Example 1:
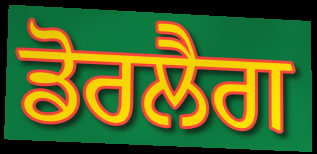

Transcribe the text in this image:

ਡੋਰਲੈਗ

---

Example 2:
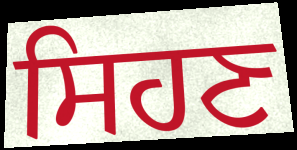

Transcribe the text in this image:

ਸਿਹਣ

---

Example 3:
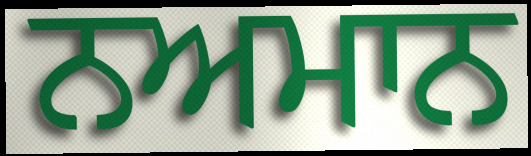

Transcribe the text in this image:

ਨਅਮਾਨ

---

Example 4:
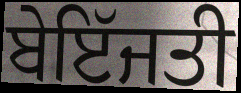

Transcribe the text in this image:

ਬੇਇੱਜਤੀ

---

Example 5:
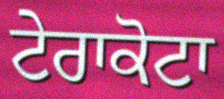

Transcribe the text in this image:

ਟੇਰਾਕੋਟਾ